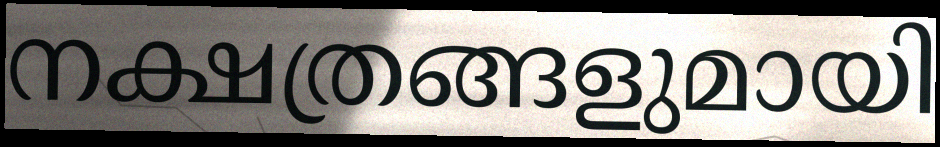
നക്ഷത്രങ്ങളുമായി